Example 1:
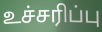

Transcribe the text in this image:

உச்சரிப்பு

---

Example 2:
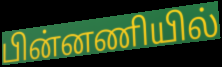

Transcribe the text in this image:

பின்னணியில்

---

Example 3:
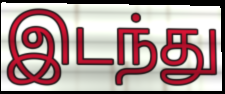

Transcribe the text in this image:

இடந்து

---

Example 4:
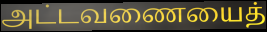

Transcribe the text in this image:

அட்டவணையைத்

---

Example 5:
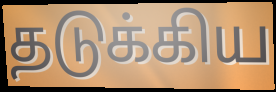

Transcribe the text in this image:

தடுக்கிய